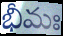
భీమః